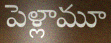
పెళ్లామూ